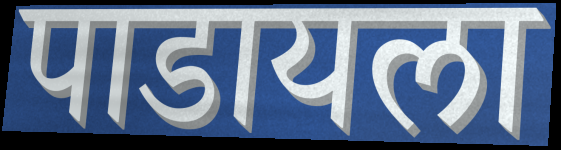
पाडायला